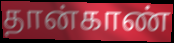
தான்காண்